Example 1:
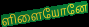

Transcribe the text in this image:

ளிளையோனே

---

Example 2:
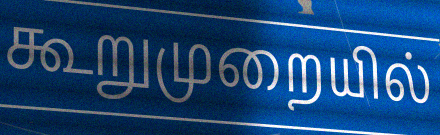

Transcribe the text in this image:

கூறுமுறையில்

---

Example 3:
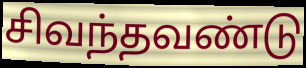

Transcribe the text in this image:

சிவந்தவண்டு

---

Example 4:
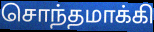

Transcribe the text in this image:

சொந்தமாக்கி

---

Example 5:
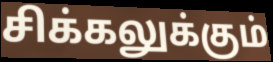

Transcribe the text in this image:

சிக்கலுக்கும்